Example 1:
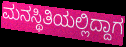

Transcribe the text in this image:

ಮನಸ್ಥಿತಿಯಲ್ಲಿದ್ದಾಗ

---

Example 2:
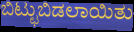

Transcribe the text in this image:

ಬಿಟ್ಟುಬಿಡಲಾಯಿತು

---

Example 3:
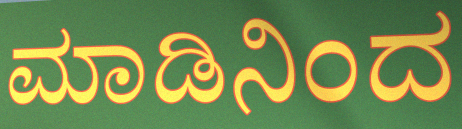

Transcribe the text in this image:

ಮಾಡಿನಿಂದ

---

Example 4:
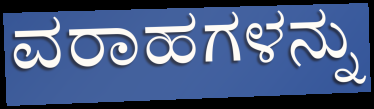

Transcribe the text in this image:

ವರಾಹಗಳನ್ನು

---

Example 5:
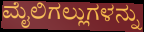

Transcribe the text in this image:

ಮೈಲಿಗಲ್ಲುಗಳನ್ನು